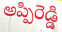
అప్పిరెడ్డి